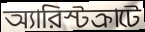
অ্যারিস্টক্রাটে